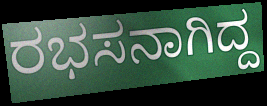
ರಭಸನಾಗಿದ್ದ